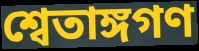
শ্বেতাঙ্গগণ